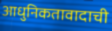
आधुनिकतावादाची